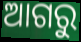
ଆଗରୁ